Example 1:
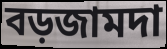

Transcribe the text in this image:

বড়জামদা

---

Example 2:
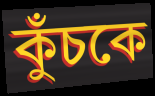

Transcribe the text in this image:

কুঁচকে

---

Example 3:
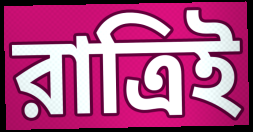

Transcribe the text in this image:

রাত্রিই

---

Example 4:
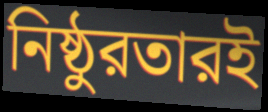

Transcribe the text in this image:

নিষ্ঠুরতারই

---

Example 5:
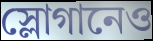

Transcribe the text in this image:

স্লোগানেও